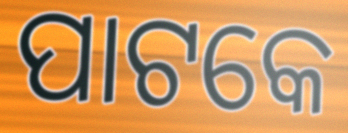
ପାଟକେ